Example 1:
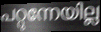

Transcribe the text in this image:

പറ്റുന്നേയില്ല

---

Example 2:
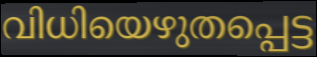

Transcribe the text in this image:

വിധിയെഴുതപ്പെട്ട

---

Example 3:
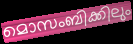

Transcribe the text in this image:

മൊസംബിക്കിലും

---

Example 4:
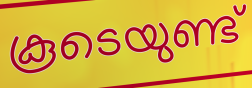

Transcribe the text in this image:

കൂടെയുണ്ട്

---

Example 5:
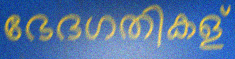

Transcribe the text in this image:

ഭേദഗതികള്